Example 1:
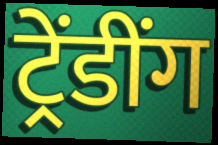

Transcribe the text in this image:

ट्रेंडींग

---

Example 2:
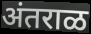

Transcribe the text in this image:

अंतराळ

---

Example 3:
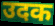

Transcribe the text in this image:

उदक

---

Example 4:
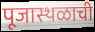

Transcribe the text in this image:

पूजास्थळाची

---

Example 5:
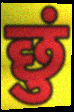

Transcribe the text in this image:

छुं